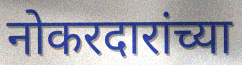
नोकरदारांच्या